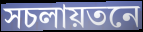
সচলায়তনে